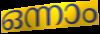
ഒന്നാം